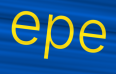
epe